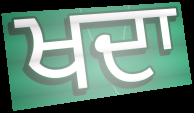
ਖਦਾ